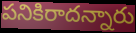
పనికిరాదన్నారు